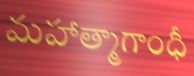
మహాత్మాగాంధీ